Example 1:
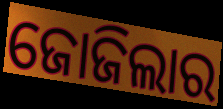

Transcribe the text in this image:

ଜୋଜିଲାର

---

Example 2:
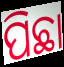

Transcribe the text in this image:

ପିଛା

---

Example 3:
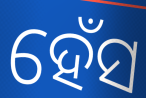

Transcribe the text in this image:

ହେଁସ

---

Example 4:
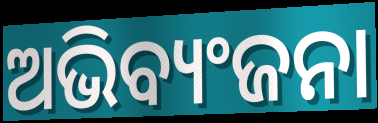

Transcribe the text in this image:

ଅଭିବ୍ୟଂଜନା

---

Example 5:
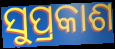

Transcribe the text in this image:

ସୁପ୍ରକାଶ